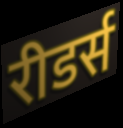
रीडर्स